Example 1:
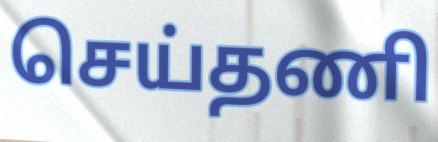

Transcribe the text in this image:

செய்தணி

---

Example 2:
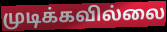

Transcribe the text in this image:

முடிக்கவில்லை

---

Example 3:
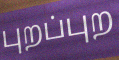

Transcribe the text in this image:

புறப்புற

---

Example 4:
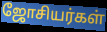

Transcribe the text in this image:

ஜோசியர்கள்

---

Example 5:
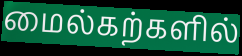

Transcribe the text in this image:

மைல்கற்களில்